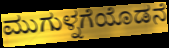
ಮುಗುಳ್ನಗೆಯೊಡನೆ